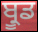
ਬ੍ਰੂਡ